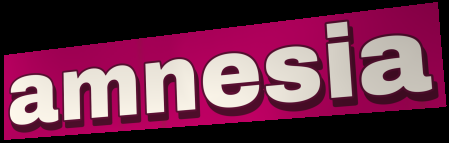
amnesia